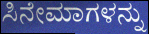
ಸಿನೇಮಾಗಳನ್ನು